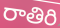
రాతిరి